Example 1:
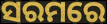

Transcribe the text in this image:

ସରମରେ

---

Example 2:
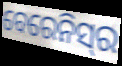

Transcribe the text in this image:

ବେରେନିସ୍‌ର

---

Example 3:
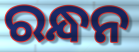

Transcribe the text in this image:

ରନ୍ଧନ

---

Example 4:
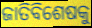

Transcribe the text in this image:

ଜାତିବିଶେଷକୁ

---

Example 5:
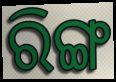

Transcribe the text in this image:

ରିଙ୍ଗ